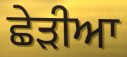
ਛੇੜੀਆ